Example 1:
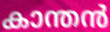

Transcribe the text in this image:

കാന്തൻ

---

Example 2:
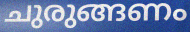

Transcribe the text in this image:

ചുരുങ്ങണം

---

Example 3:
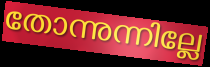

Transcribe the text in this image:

തോന്നുന്നില്ലേ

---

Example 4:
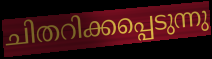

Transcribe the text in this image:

ചിതറിക്കപ്പെടുന്നു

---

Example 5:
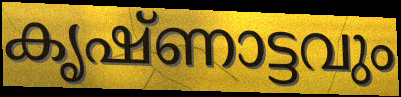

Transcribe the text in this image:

കൃഷ്ണാട്ടവും